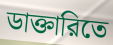
ডাক্তারিতে